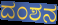
ದಂಶನ